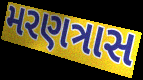
મરણત્રાસ